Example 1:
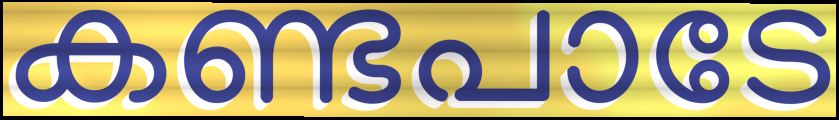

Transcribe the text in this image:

കണ്ടപാടേ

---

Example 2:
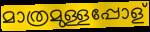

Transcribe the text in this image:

മാത്രമുള്ളപ്പോള്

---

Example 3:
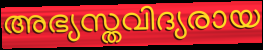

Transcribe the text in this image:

അഭ്യസ്തവിദ്യരായ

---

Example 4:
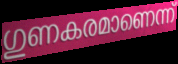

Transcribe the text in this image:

ഗുണകരമാണെന്ന്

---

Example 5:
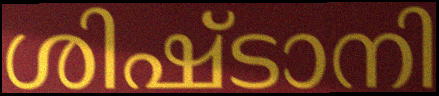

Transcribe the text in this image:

ശിഷ്ടാനി